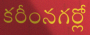
కరీంనగర్లో